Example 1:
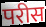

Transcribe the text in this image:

परीस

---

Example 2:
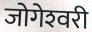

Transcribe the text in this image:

जोगेश्‍वरी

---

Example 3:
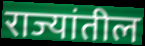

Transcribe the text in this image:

राज्यांतील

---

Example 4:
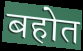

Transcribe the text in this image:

बहोत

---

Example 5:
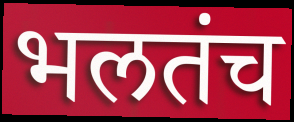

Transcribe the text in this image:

भलतंच